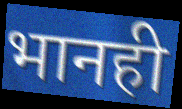
भानही